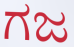
ಗಜ